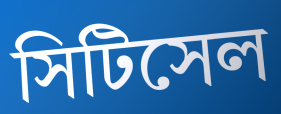
সিটিসেল